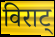
विराट्